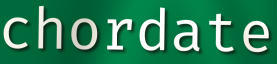
chordate